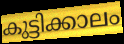
കുട്ടിക്കാലം